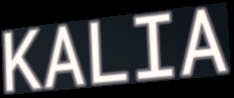
KALIA